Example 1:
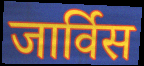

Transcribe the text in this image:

जार्विस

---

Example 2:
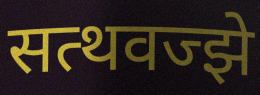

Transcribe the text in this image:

सत्थवज्झे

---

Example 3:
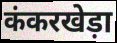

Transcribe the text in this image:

कंकरखेड़ा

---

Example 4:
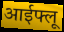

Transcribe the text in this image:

आईफ्लू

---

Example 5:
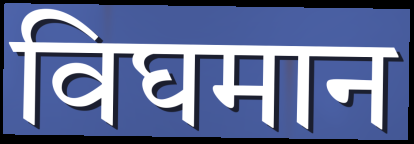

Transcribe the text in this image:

विघमान